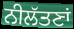
ਨੀਲੱਤਣਾਂ